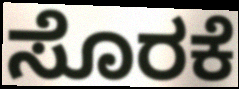
ಸೊರಕೆ